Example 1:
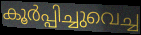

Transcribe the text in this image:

കൂർപ്പിച്ചുവെച്ച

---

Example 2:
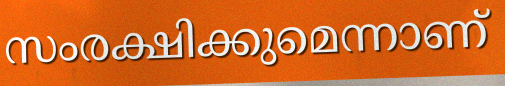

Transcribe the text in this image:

സംരക്ഷിക്കുമെന്നാണ്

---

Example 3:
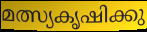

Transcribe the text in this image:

മത്സ്യകൃഷിക്കു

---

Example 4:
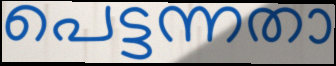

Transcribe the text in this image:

പെട്ടന്നതാ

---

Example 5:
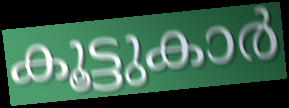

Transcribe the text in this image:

കൂട്ടുകാർ